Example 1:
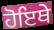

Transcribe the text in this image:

ਹੋਇਥੇ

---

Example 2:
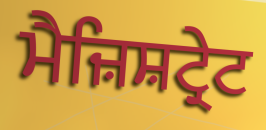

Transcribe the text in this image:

ਮੈਜ਼ਿਸ਼ਟ੍ਰੇਟ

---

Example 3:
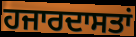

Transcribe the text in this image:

ਹਜਾਰਦਾਸਤਾਂ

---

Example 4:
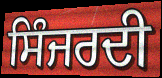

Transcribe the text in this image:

ਸਿੰਜਰਦੀ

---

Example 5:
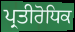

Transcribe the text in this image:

ਪ੍ਰਤੀਰੋਧਿਕ